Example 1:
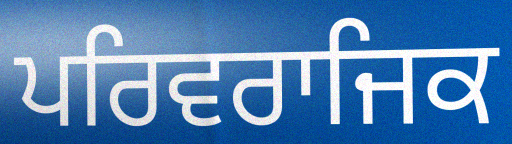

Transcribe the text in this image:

ਪਰਿਵਰਾਜਿਕ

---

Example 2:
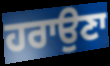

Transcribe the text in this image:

ਹਰਾਉਣਾ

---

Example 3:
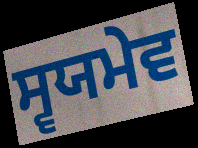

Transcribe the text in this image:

ਸ੍ਵਯਮੇਵ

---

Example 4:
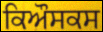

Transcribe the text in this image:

ਕਿਔਸਕਸ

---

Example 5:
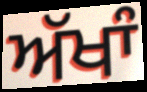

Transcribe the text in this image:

ਅੱਖਾੰ